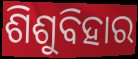
ଶିଶୁବିହାର